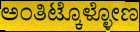
ಅಂತಿಟ್ಕೊಳ್ಳೋಣ